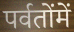
पर्वतोंमें